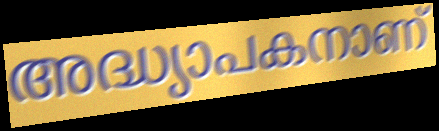
അദ്ധ്യാപകനാണ്